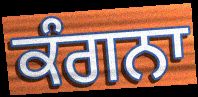
ਕੰਗਨਾ